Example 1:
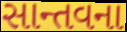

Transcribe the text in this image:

સાન્તવના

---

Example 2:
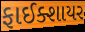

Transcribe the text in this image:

ફાઈક્શાયર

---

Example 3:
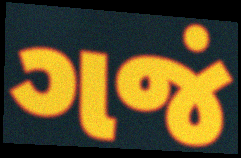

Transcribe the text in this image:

ગજં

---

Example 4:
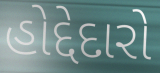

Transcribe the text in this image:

હોદ્દેદારો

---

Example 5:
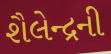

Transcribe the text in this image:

શૈલેન્દ્રની